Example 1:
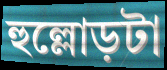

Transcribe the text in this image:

হুল্লোড়টা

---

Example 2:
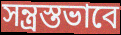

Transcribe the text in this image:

সন্ত্রস্তভাবে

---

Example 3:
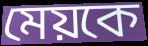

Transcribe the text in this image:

মেয়কে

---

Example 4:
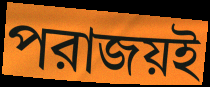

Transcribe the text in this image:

পরাজয়ই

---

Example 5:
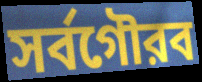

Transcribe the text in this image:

সর্বগৌরব